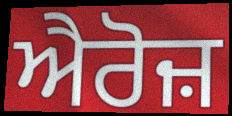
ਐਰੋਜ਼